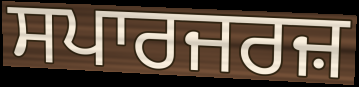
ਸਪਾਰਜਰਜ਼